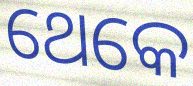
ଥେକେ